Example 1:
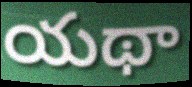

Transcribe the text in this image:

యథా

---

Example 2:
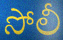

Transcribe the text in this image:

సోలీ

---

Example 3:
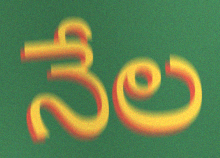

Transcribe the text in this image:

నేల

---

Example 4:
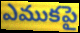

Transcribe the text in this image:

ఎముకపై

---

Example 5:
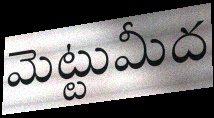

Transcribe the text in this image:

మెట్టుమీద